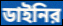
ডাইনির